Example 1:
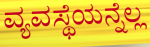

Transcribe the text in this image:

ವ್ಯವಸ್ಥೆಯನ್ನೆಲ್ಲ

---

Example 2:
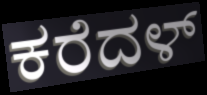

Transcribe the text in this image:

ಕರೆದಳ್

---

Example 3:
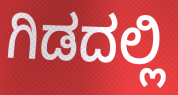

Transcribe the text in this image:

ಗಿಡದಲ್ಲಿ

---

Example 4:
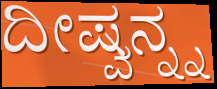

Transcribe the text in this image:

ದೀಷ್ವನ್ನ್ನ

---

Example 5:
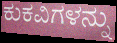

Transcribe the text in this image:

ಕುಕವಿಗಳನ್ನು